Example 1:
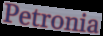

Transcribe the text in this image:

Petronia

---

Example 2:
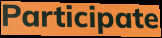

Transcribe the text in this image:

Participate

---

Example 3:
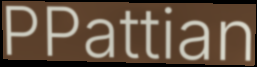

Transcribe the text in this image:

PPattian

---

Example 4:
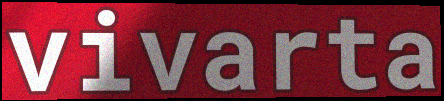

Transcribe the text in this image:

vivarta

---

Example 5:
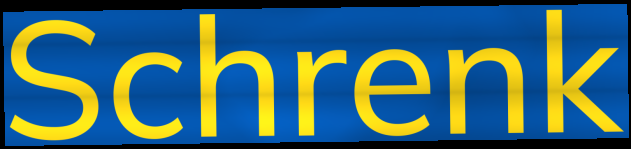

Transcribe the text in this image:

Schrenk